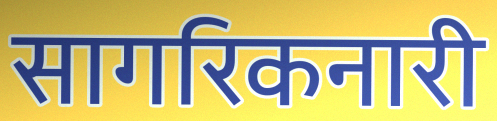
सागरिकनारी